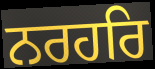
ਨਰਹਰਿ